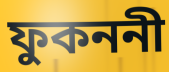
ফুকননী